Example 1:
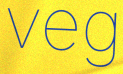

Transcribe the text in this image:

veg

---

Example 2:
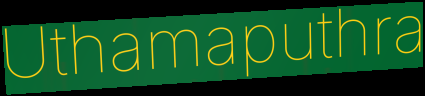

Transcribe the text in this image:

Uthamaputhra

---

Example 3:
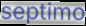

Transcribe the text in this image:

septimo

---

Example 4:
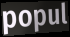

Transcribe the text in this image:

popul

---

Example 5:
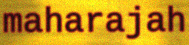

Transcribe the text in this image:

maharajah